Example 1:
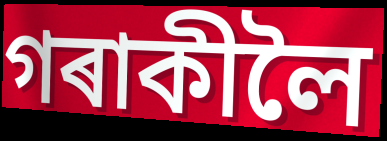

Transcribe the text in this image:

গৰাকীলৈ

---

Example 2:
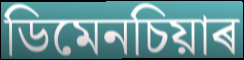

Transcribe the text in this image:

ডিমেনচিয়াৰ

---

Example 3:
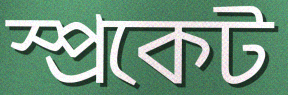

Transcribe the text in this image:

স্প্ৰকেট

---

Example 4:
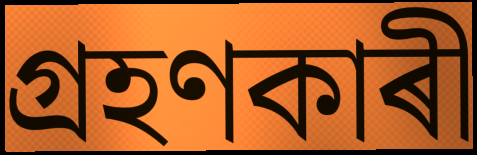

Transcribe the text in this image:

গ্ৰহণকাৰী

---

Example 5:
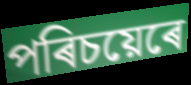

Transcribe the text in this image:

পৰিচয়েৰে